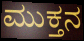
ಮುಕ್ತನ